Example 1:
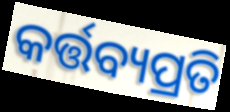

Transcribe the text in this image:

କର୍ତ୍ତବ୍ୟପ୍ରତି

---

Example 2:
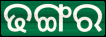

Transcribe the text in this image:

ଢଙ୍ଗର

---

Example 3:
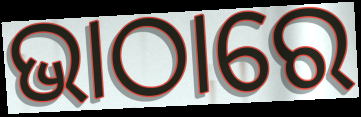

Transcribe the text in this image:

ଭାଠାରେ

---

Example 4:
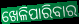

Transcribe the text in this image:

ଖେଳିପାରିବାର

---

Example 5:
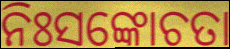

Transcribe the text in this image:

ନିଃସଙ୍କୋଚତା